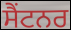
ਸੈਂਟਨਰ